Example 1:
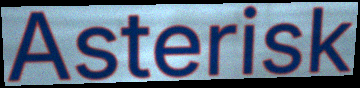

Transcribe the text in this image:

Asterisk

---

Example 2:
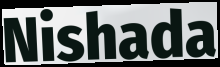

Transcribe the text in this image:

Nishada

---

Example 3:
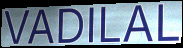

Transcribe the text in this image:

VADILAL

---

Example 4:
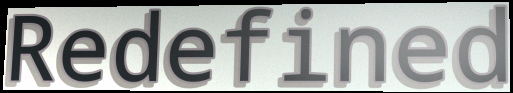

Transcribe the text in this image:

Redefined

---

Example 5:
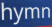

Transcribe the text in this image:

hymn